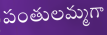
పంతులమ్మగా